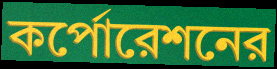
কর্পোরেশনের